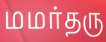
மமர்தரு